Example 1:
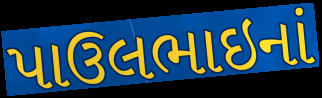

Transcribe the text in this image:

પાઉલભાઇનાં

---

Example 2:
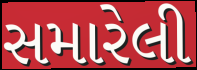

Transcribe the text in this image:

સમારેલી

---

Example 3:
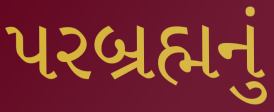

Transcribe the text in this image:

પરબ્રહ્મનું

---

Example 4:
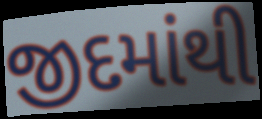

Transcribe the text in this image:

જીદમાંથી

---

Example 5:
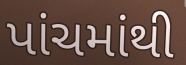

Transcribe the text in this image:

પાંચમાંથી